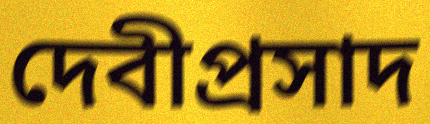
দেবীপ্রসাদ